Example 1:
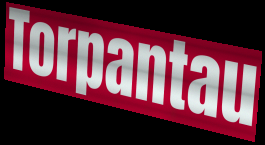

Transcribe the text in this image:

Torpantau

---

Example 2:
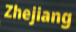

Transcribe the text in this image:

Zhejiang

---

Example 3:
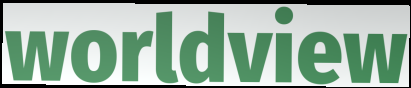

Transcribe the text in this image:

worldview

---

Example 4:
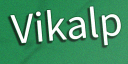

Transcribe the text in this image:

Vikalp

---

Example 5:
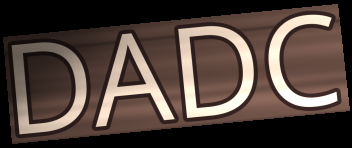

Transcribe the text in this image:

DADC